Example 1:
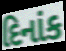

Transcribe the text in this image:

દિનાંક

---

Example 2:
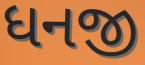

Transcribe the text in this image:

ધનજી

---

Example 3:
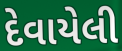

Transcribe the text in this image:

દેવાયેલી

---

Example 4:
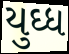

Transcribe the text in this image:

યુઘ્ધ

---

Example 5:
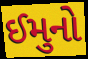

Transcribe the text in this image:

ઈમુનો